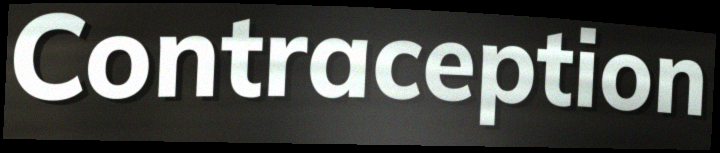
Contraception